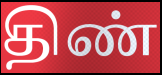
திண்